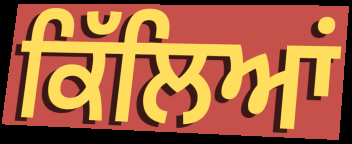
ਕਿੱਲਿਆਂ